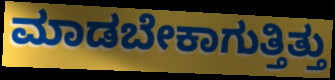
ಮಾಡಬೇಕಾಗುತ್ತಿತ್ತು